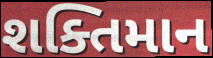
શક્તિમાન